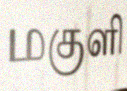
மகுளி